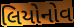
લિયોનોવ